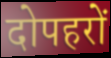
दोपहरों